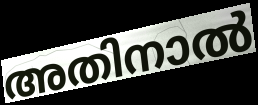
അതിനാൽ